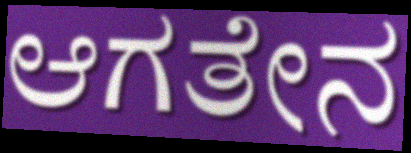
ಆಗತೇನ